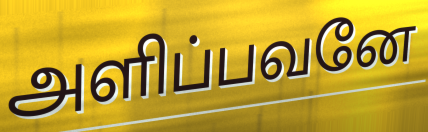
அளிப்பவனே